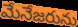
మేనేజరును